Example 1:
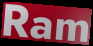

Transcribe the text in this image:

Ram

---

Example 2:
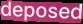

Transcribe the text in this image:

deposed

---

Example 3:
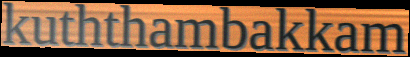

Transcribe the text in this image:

kuththambakkam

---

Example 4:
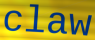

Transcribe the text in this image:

claw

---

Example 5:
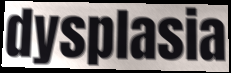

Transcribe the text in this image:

dysplasia